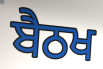
ਬੈਠਖ